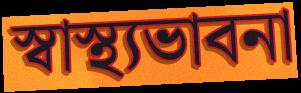
স্বাস্থ্যভাবনা